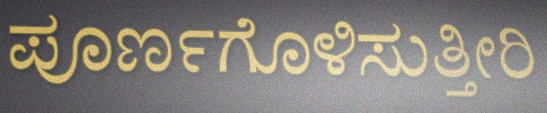
ಪೂರ್ಣಗೊಳಿಸುತ್ತೀರಿ